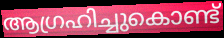
ആഗ്രഹിച്ചുകൊണ്ട്